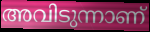
അവിടുന്നാണ്